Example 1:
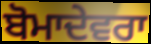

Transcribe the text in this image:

ਬੋਮਾਦੇਵਰਾ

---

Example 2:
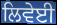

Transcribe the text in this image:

ਲਿਵੇਈ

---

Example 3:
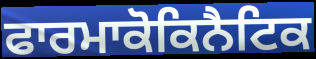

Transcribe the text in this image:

ਫਾਰਮਾਕੋਕਿਨੈਟਿਕ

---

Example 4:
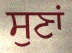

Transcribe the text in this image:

ਸੁਣਾਂ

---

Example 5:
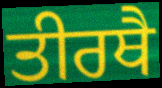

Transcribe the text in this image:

ਤੀਰਥੈ